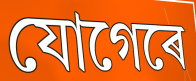
যোগেৰে